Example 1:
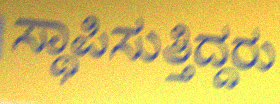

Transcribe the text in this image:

ಸ್ಥಾಪಿಸುತ್ತಿದ್ದರು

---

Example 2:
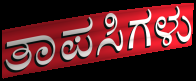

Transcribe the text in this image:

ತಾಪಸಿಗಳು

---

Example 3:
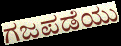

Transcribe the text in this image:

ಗಜಪಡೆಯು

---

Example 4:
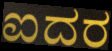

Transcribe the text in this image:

ಐದರ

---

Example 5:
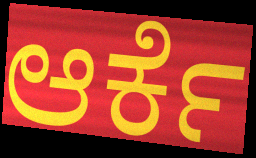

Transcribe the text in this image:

ಆರ್ಕೆ